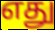
எது